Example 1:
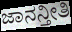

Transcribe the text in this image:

ಜಾನನ್ತೀತಿ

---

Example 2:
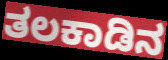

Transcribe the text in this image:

ತಲಕಾಡಿನ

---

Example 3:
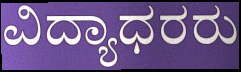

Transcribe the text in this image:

ವಿದ್ಯಾಧರರು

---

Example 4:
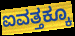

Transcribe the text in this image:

ಐವತ್ತಕ್ಕೂ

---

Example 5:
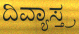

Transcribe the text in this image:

ದಿವ್ಯಾಸ್ತ್ರ